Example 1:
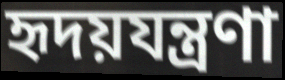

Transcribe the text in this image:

হৃদয়যন্ত্রণা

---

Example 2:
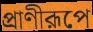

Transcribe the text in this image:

প্রাণীরূপে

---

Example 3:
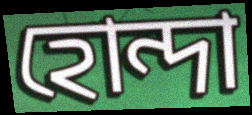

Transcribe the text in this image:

হোন্দা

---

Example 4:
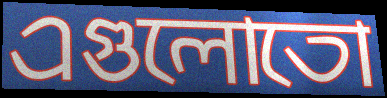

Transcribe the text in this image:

এগুলোতো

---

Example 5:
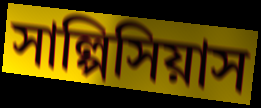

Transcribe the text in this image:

সাল্পিসিয়াস